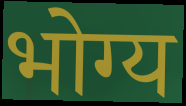
भोग्य